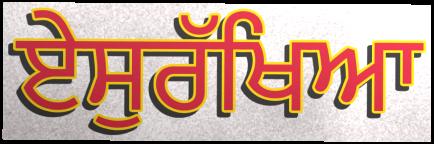
ਏਸੁਰੱਖਿਆ